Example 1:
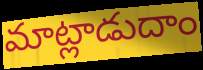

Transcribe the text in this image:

మాట్లాడుదాం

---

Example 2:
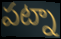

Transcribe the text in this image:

పట్నా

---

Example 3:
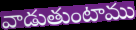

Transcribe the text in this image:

వాడుతుంటాము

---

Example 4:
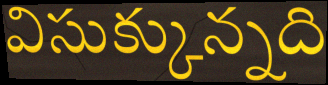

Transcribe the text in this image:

విసుక్కున్నది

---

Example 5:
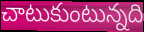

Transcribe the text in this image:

చాటుకుంటున్నది